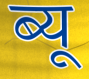
ब्यू